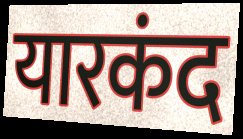
यारकंद